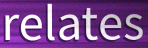
relates